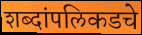
शब्दांपलिकडचे